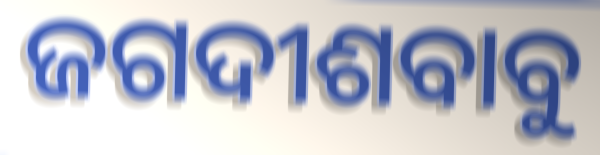
ଜଗଦୀଶବାବୁ